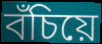
বঁচিয়ে